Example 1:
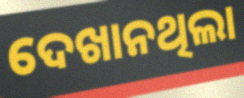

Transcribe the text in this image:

ଦେଖାନଥିଲା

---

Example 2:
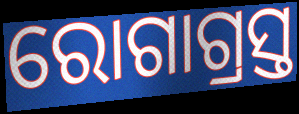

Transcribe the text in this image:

ରୋଗାଗ୍ରସ୍ତ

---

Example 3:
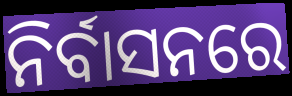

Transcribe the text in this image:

ନିର୍ବାସନରେ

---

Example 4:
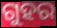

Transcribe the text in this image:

ଗୁହର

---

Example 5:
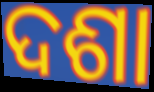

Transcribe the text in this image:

ଦଶା